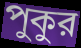
পুকুর